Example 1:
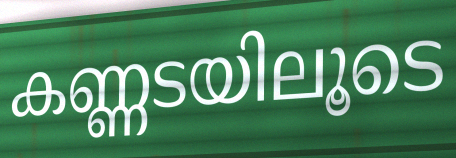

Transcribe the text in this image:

കണ്ണടയിലൂടെ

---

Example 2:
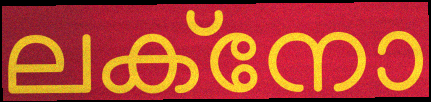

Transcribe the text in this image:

ലക്നോ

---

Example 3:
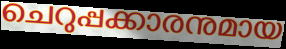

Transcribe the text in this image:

ചെറുപ്പക്കാരനുമായ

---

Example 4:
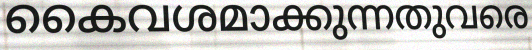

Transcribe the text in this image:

കൈവശമാക്കുന്നതുവരെ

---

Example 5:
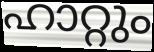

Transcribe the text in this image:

ഹാറ്റും